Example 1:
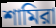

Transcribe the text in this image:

শামিরা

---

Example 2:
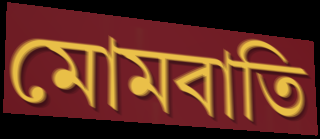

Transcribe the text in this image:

মোমবাতি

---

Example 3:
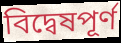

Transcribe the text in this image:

বিদ্বেষপূর্ণ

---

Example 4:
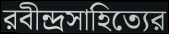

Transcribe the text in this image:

রবীন্দ্রসাহিত্যের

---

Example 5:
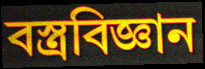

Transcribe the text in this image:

বস্ত্রবিজ্ঞান